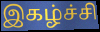
இகழ்ச்சி